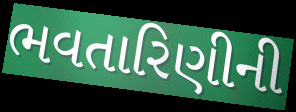
ભવતારિણીની